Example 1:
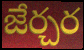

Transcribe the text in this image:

జేర్చర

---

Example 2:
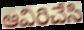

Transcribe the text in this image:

ఆవిరిచేసి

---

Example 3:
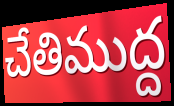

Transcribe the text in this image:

చేతిముద్ద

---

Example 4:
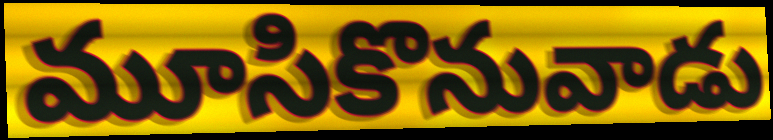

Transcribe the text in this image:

మూసికొనువాడు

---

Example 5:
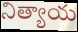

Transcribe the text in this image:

నిత్యాయ